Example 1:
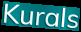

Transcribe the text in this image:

Kurals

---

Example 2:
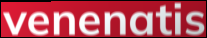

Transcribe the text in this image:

venenatis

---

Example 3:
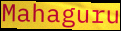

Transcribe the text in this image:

Mahaguru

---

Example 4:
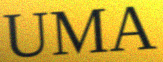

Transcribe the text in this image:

UMA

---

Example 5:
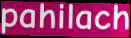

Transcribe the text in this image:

pahilach